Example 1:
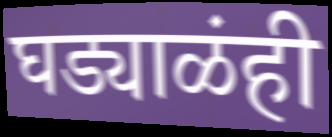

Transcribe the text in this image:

घड्याळंही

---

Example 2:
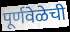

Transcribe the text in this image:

पूर्णवेळेची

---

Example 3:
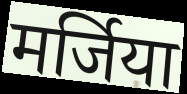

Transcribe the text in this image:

मर्जिया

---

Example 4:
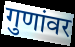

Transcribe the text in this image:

गुणांवर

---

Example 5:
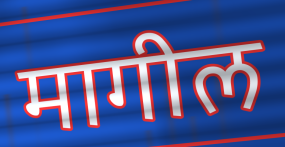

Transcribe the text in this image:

मागील